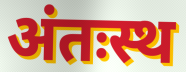
अंतःस्थ